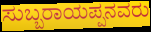
ಸುಬ್ಬರಾಯಪ್ಪನವರು